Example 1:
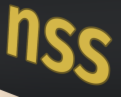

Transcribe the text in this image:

nss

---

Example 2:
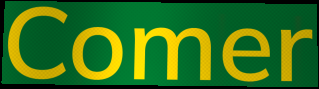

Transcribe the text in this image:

Comer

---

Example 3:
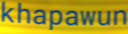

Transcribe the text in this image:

khapawun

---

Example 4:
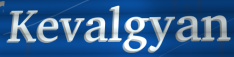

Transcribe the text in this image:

Kevalgyan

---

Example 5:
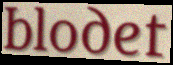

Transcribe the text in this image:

blodet